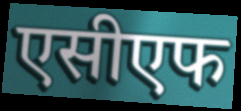
एसीएफ